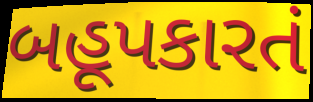
બહૂપકારતં